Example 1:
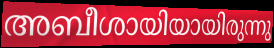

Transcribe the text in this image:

അബീശായിയായിരുന്നു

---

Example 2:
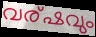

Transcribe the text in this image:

വര്ഷവും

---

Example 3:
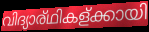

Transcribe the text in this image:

വിദ്യാര്ഥികള്ക്കായി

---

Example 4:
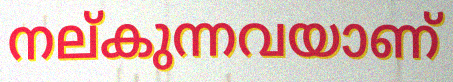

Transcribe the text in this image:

നല്കുന്നവയാണ്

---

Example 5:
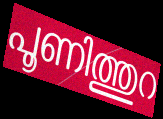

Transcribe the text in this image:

പൂണിത്തുറ